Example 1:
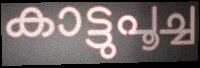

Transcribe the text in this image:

കാട്ടുപൂച്ച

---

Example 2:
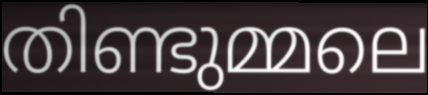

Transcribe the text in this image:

തിണ്ടുമ്മലെ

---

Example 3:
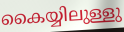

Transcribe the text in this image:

കൈയ്യിലുള്ളു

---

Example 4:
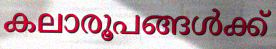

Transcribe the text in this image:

കലാരൂപങ്ങൾക്ക്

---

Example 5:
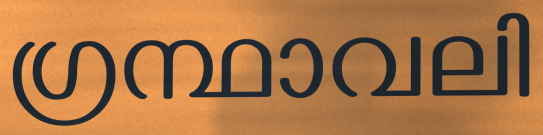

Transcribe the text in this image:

ഗ്രന്ഥാവലി